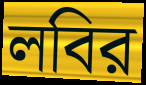
লবির